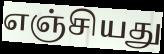
எஞ்சியது